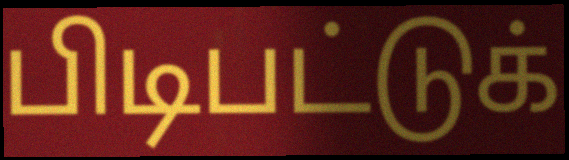
பிடிபட்டுக்